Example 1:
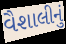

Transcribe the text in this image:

વૈશાલીનું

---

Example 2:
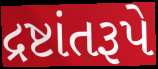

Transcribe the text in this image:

દ્રષ્ટાંતરૂપે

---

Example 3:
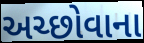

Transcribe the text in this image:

અચ્છોવાના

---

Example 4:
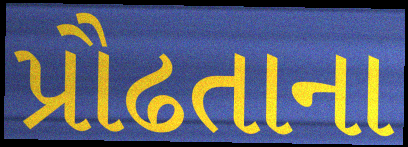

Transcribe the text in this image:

પ્રૌઢતાના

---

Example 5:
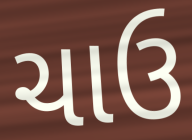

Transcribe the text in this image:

ચાઉ